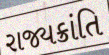
રાજ્યક્રાંતિ